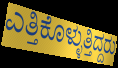
ಎತ್ತಿಕೊಳ್ಳುತ್ತಿದ್ದರು